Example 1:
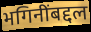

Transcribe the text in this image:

भगिनींबद्दल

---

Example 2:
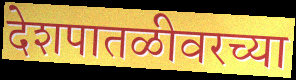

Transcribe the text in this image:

देशपातळीवरच्या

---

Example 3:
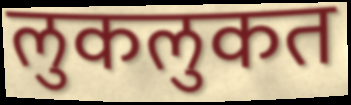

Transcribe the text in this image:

लुकलुकत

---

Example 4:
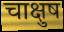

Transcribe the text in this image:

चाक्षुष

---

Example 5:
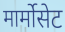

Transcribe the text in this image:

मार्मोसेट